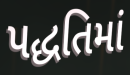
પદ્ધતિમાં